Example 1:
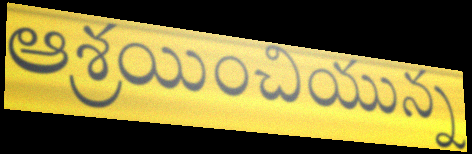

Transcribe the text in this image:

ఆశ్రయించియున్న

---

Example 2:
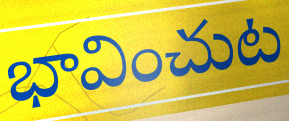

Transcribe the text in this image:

భావించుట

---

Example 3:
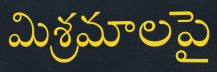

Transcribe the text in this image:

మిశ్రమాలపై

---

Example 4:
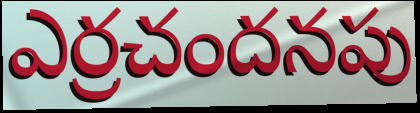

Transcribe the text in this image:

ఎర్రచందనపు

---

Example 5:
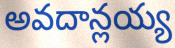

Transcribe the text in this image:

అవదాన్లయ్య